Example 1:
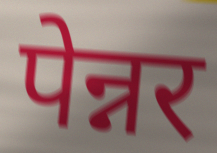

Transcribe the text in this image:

पेन्नर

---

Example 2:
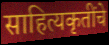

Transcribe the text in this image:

साहित्यकृतींचे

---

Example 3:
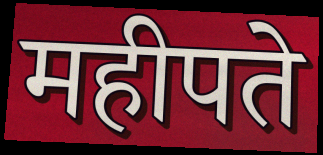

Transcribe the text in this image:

महीपते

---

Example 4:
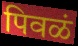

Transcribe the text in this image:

पिवळं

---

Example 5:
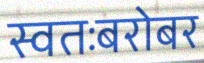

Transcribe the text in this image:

स्वतःबरोबर